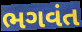
ભગવંત